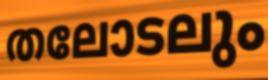
തലോടലും